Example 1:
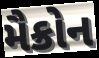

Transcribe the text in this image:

મૈક્રોન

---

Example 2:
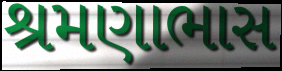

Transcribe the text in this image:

શ્રમણાભાસ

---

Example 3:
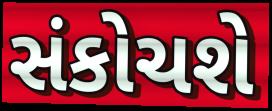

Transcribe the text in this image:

સંકોચશે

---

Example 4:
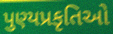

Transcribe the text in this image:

પુણ્યપ્રકૃતિઓ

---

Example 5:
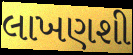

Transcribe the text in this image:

લાખણશી